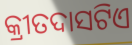
କ୍ରୀତଦାସଟିଏ